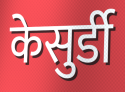
केसुर्डी